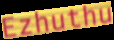
Ezhuthu